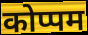
कोप्पम